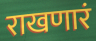
राखणारं